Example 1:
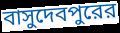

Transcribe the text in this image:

বাসুদেবপুরের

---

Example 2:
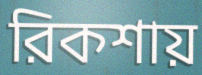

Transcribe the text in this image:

রিকশায়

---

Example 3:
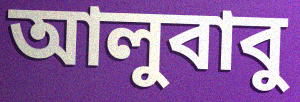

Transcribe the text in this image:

আলুবাবু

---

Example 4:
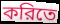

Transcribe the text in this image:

করিতে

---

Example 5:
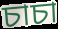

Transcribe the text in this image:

চাচা